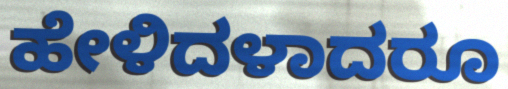
ಹೇಳಿದಳಾದರೂ